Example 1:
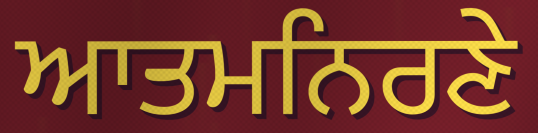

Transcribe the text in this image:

ਆਤਮਨਿਰਣੇ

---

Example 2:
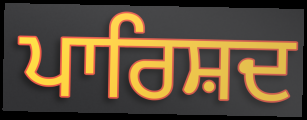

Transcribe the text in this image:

ਪਾਰਿਸ਼ਦ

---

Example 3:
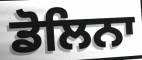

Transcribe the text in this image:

ਡੋਲਿਨਾ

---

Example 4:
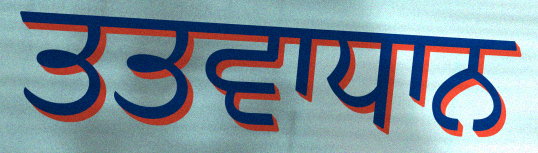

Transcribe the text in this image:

ਤਤਵਾਧਾਨ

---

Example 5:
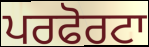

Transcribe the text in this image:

ਪਰਫੋਰਟਾ